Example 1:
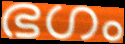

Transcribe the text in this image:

ഭഗം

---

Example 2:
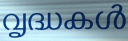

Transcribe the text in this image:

വൃദ്ധകൾ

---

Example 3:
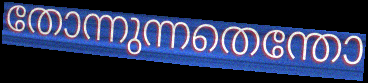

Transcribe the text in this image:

തോന്നുന്നതെന്തോ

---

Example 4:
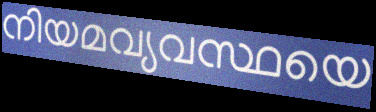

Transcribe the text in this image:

നിയമവ്യവസ്ഥയെ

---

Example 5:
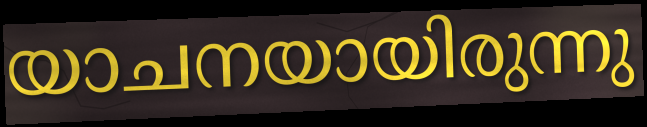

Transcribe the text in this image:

യാചനയായിരുന്നു